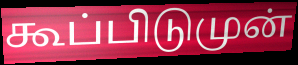
கூப்பிடுமுன்